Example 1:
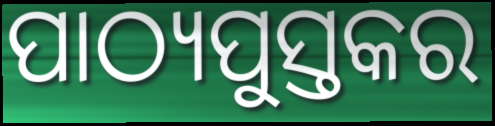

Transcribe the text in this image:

ପାଠ୍ୟପୁସ୍ତକର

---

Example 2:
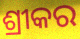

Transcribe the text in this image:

ଶ୍ରୀକର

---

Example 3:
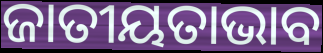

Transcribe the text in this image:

ଜାତୀୟତାଭାବ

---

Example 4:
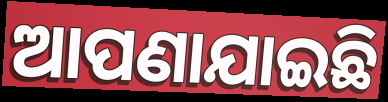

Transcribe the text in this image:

ଆପଣାଯାଇଛି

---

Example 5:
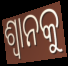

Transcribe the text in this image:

ଶ୍ଵାନକୁ